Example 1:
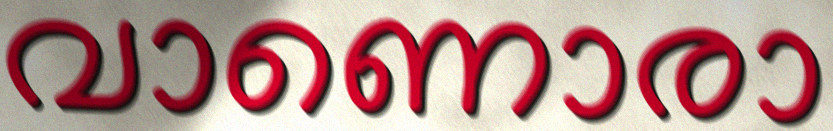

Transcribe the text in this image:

വാണൊരാ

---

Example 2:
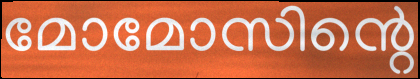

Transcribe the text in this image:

മോമോസിന്റെ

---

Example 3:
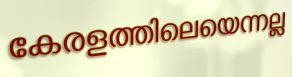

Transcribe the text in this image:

കേരളത്തിലെയെന്നല്ല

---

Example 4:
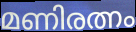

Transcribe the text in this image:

മണിരത്നം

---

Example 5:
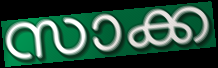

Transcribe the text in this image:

സാക്ക